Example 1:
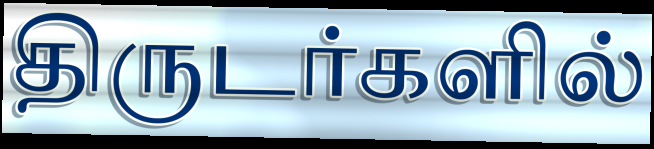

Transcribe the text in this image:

திருடர்களில்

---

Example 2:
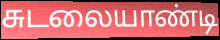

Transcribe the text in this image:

சுடலையாண்டி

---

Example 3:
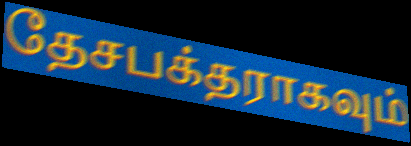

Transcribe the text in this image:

தேசபக்தராகவும்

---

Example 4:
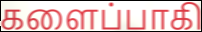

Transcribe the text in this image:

களைப்பாகி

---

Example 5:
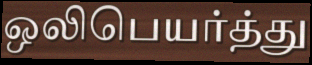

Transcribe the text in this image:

ஒலிபெயர்த்து